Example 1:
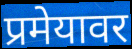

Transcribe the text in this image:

प्रमेयावर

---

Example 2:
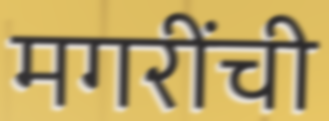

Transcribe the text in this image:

मगरींची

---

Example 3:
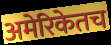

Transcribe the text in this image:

अमेरिकेतच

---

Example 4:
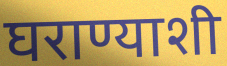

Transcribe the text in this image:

घराण्याशी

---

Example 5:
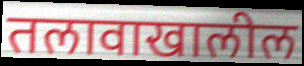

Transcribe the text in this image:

तलावाखालील